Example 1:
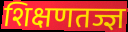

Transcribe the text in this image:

शिक्षणतज्ज्ञ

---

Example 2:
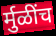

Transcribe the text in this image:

र्मुळींच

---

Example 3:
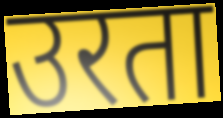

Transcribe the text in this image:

उरता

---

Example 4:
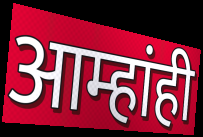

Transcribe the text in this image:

आम्हांही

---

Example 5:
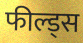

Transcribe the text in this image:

फील्ड्स